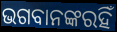
ଭଗବାନଙ୍କରହିଁ